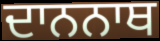
ਦਾਨਨਾਥ